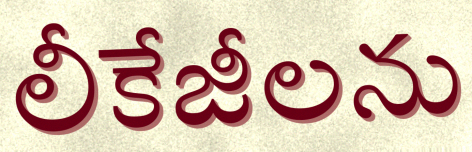
లీకేజీలను